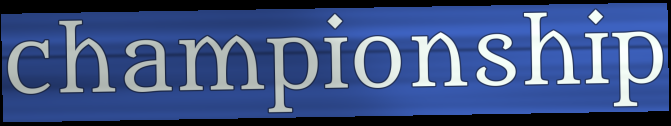
championship